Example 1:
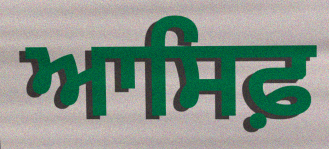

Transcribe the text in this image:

ਆਸਿਫ਼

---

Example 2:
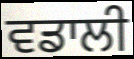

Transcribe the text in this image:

ਵਡਾਲੀ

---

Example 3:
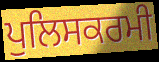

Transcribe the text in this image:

ਪੁਲਿਸਕਰਮੀ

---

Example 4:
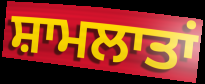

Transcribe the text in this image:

ਸ਼ਾਮਲਾਤਾਂ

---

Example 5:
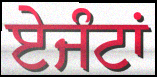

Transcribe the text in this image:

ਏਜੰਟਾਂ